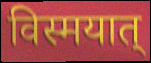
विस्मयात्